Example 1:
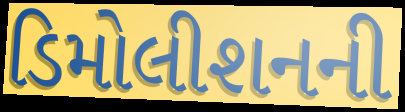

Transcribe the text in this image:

ડિમોલીશનની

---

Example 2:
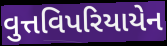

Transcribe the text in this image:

વુત્તવિપરિયાયેન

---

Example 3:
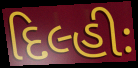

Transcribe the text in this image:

દિલ્હીઃ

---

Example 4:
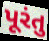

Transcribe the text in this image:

પૂરંતુ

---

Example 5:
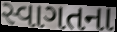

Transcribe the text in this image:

સ્વાગતના